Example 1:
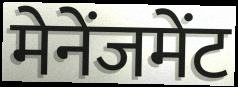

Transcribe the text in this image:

मेनेंजमेंट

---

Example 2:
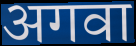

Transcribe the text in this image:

अगवा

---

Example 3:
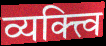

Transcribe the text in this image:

व्यक्त्त्वि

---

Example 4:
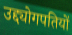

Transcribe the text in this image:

उद्द्योगपतियों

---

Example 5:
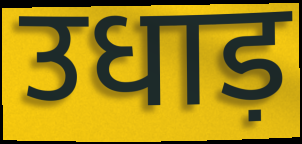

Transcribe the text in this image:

उधाड़